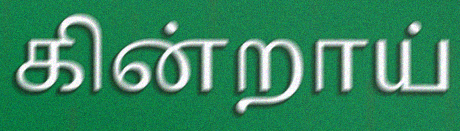
கின்றாய்